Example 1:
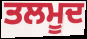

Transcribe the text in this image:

ਤਲਮੂਦ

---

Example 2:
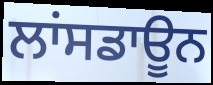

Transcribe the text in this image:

ਲਾਂਸਡਾਊਨ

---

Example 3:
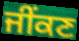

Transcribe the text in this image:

ਜੀਂਕਣ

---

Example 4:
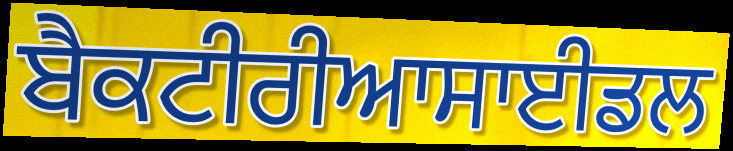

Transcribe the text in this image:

ਬੈਕਟੀਰੀਆਸਾਈਡਲ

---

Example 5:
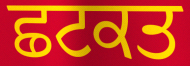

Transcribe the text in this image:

ਛਟਕਤ